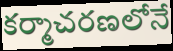
కర్మాచరణలోనే